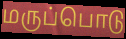
மருப்பொடு